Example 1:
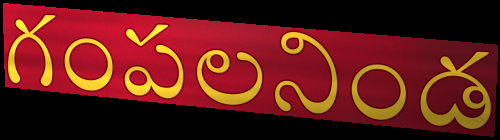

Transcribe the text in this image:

గంపలనిండ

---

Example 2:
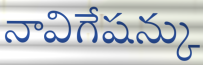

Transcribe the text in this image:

నావిగేషన్కు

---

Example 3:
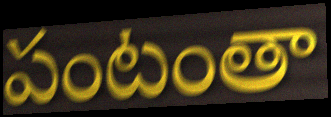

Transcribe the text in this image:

పంటంతా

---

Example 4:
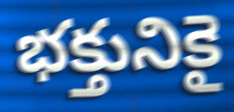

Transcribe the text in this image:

భక్తునికై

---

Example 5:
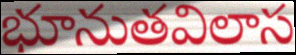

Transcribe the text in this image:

భూనుతవిలాస